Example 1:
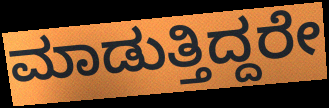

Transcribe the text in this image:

ಮಾಡುತ್ತಿದ್ದರೇ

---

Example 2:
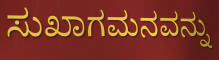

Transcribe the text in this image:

ಸುಖಾಗಮನವನ್ನು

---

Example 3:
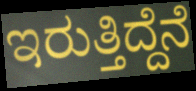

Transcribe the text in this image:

ಇರುತ್ತಿದ್ದೆನೆ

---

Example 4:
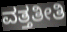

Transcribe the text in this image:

ವತ್ತತೀತಿ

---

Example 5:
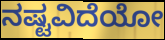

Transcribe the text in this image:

ನಷ್ಟವಿದೆಯೋ